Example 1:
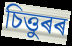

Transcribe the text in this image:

চিত্তুৰৰ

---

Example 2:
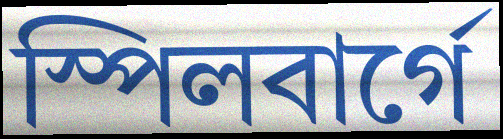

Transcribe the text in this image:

স্পিলবাৰ্গে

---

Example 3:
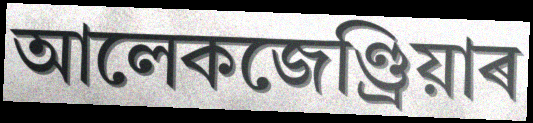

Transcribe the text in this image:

আলেকজেণ্ড্ৰিয়াৰ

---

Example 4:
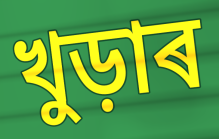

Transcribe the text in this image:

খুড়াৰ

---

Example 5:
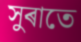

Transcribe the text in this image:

সুৰাতে